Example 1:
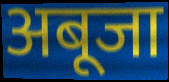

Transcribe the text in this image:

अबूजा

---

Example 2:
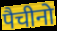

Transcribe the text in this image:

पैचीनो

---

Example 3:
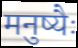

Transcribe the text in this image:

मनुष्यैः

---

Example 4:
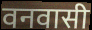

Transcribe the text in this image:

वनवासी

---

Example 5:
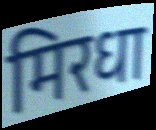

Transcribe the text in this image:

मिरधा